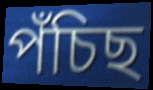
পঁচিছ